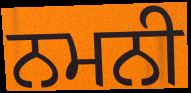
ਨਮਨੀ